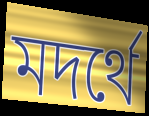
মদর্থে